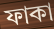
ফাকা